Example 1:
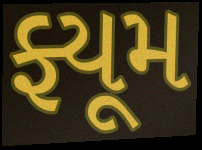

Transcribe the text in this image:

ફ્યૂમ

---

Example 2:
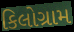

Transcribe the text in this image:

કિલોગ્રામ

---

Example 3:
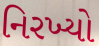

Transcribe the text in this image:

નિરખ્યો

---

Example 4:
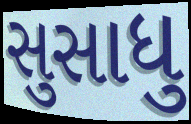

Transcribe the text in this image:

સુસાધુ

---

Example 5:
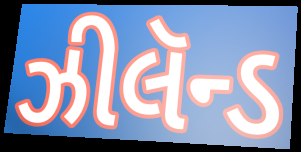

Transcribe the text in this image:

ઝીલૅન્ડ